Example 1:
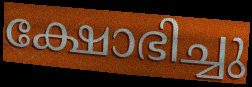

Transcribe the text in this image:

ക്ഷോഭിച്ചു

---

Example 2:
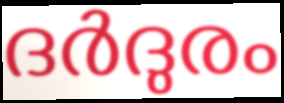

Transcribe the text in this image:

ദർദുരം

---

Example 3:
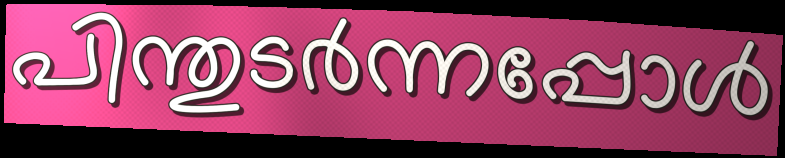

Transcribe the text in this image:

പിന്തുടർന്നപ്പോൾ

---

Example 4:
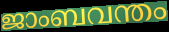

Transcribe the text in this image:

ജാംബവന്തം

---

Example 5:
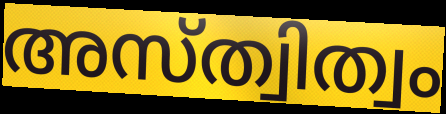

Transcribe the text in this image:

അസ്ത്വിത്വം